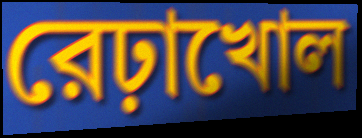
রেঢ়াখোল